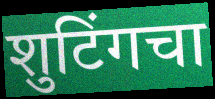
शुटिंगचा